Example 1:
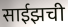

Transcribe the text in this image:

साईझची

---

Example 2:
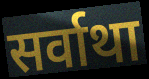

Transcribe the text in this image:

सर्वाथा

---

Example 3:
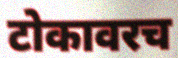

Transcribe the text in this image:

टोकावरच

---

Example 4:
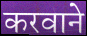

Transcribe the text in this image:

करवाने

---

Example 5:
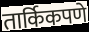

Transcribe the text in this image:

तार्किकपणे